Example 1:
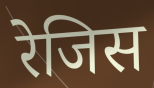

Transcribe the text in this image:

रेजिस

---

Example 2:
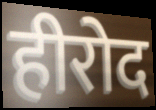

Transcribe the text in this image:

हीरोद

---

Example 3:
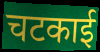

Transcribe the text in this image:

चटकाई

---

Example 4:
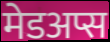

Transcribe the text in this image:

मेडअप्स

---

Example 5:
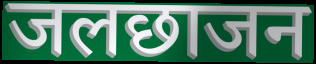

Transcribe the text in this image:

जलछाजन